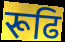
रूढि